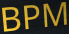
BPM